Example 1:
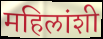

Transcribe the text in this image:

महिलांशी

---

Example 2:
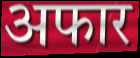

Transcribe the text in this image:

अफार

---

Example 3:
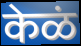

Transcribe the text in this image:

केळं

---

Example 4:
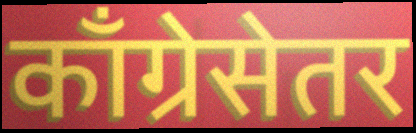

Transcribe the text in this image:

काँग्रेसेतर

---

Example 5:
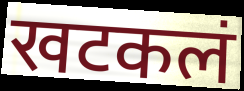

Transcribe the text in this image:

खटकलं